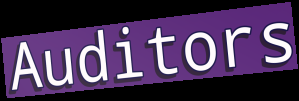
Auditors